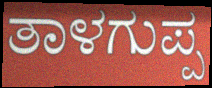
ತಾಳಗುಪ್ಪ